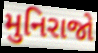
મુનિરાજો